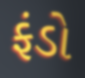
ફંડો